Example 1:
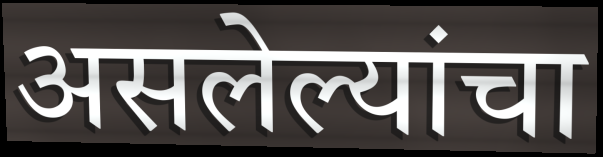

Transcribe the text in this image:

असलेल्यांचा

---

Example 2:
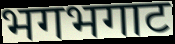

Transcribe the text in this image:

भगभगाट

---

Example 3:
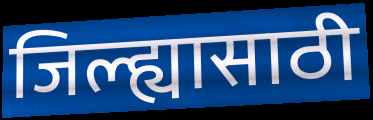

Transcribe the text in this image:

जिल्ह्यासाठी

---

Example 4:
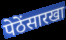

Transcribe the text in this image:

पेठेंसारखा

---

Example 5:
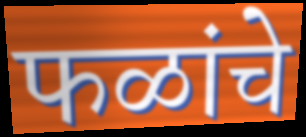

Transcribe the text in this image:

फळांचे